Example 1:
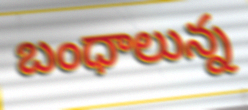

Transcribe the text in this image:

బంధాలున్న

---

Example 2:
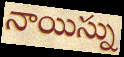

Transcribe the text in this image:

నాయిస్ను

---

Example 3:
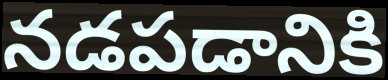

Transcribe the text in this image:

నడపడానికి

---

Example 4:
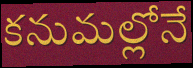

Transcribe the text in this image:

కనుమల్లోనే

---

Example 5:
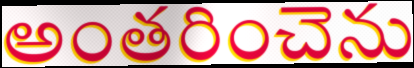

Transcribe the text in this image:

అంతరించెను